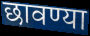
छावण्या